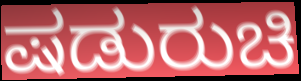
ಷಡುರುಚಿ